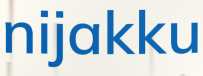
nijakku